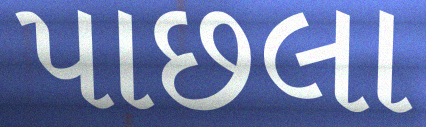
પાછલા